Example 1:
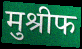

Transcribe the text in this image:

मुश्रीफ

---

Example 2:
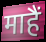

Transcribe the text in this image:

माहैं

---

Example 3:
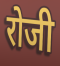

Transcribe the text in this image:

रोजी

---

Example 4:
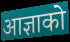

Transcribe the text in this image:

आज्ञाको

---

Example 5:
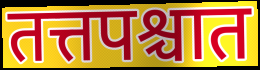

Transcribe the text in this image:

तत्तपश्चात